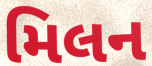
મિલન